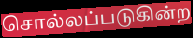
சொல்லப்படுகின்ற